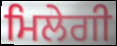
ਮਿਲੇਗੀ